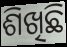
ଶିଖିଛି